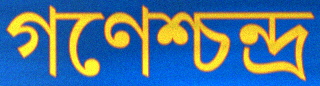
গণেশ্চন্দ্র